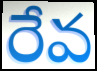
రేవ